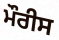
ਮੌਰੀਸ